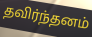
தவிர்ந்தனம்